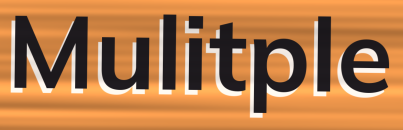
Mulitple